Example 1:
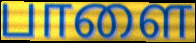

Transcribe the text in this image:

பாளை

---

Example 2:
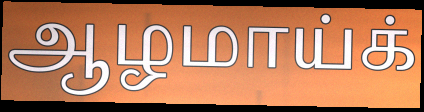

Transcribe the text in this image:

ஆழமாய்க்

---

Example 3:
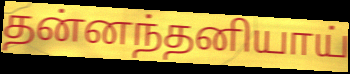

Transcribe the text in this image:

தன்னந்தனியாய்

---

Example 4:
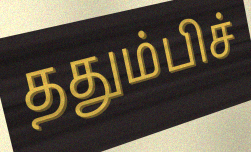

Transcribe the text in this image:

ததும்பிச்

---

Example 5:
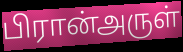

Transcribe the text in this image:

பிரான்அருள்